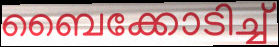
ബൈക്കോടിച്ച്